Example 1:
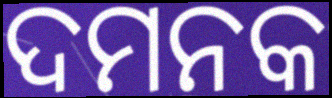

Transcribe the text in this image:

ଦମନକ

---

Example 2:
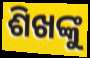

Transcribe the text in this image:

ଶିଖଙ୍କୁ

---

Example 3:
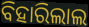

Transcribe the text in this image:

ବିହାରିଲାଲ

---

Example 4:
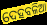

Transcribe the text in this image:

ଦେହବଳିଆ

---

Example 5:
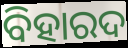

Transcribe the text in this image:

ବିହାରଦ